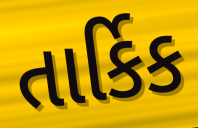
તાર્કિક